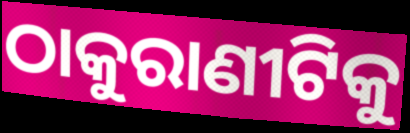
ଠାକୁରାଣୀଟିକୁ